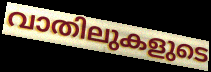
വാതിലുകളുടെ